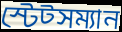
স্টেট্সম্যান